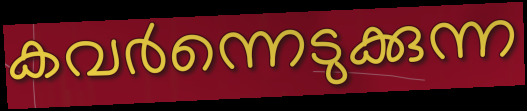
കവർന്നെടുക്കുന്ന